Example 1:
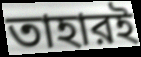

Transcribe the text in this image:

তাহারই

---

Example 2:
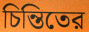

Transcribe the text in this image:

চিন্তিতের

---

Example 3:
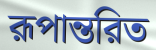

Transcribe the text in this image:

রূপান্তরিত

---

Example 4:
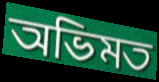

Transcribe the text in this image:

অভিমত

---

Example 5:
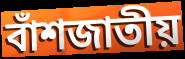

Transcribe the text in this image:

বাঁশজাতীয়